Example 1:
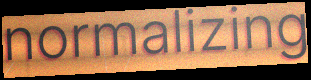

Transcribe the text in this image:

normalizing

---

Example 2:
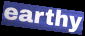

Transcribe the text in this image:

earthy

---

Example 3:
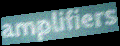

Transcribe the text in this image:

amplifiers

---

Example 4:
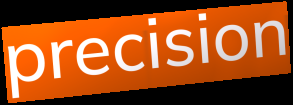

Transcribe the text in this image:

precision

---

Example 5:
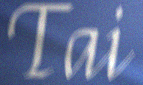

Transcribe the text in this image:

Tai